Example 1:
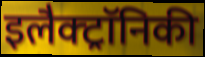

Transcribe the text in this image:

इलैक्ट्रॉनिकी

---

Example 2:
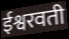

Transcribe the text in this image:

ईश्वरवती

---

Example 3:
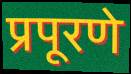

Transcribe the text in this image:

प्रपूरणे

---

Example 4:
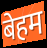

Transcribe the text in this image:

बेहम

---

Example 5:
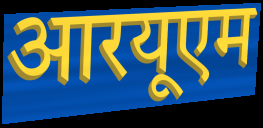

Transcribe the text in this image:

आरयूएम